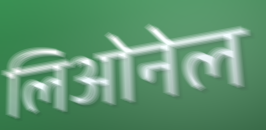
लिओनेल